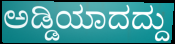
ಅಡ್ಡಿಯಾದದ್ದು